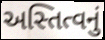
અસ્તિત્વનું